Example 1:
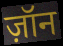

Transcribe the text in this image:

ज़ॉन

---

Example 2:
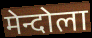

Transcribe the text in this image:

मेन्दोला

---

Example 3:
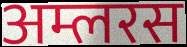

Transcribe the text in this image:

अम्लरस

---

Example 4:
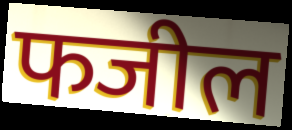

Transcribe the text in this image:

फजील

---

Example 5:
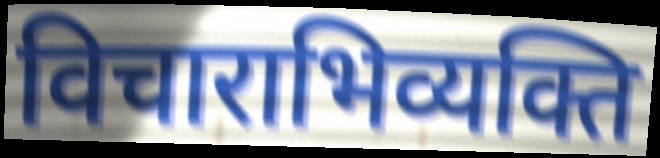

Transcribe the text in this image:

विचाराभिव्यक्ति